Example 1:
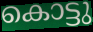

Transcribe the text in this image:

കൊട്ടു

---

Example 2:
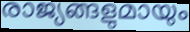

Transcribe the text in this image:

രാജ്യങ്ങളുമായും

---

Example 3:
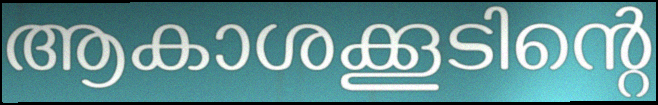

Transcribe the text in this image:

ആകാശക്കൂടിന്റെ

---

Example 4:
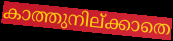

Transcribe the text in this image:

കാത്തുനില്ക്കാതെ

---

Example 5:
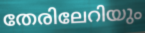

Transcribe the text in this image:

തേരിലേറിയും